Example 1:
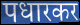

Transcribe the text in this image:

पधारकर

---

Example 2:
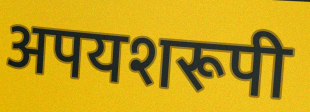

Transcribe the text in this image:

अपयशरूपी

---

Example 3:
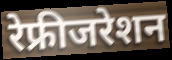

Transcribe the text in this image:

रेफ्रीजरेशन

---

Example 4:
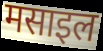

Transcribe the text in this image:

मसाइल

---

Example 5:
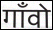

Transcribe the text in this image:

गाँवो